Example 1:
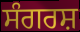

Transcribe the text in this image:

ਸੰਗਰਸ਼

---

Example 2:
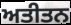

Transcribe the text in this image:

ਅਤੀਤਨ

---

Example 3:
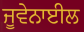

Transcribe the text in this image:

ਜੂਵੇਨਾਈਲ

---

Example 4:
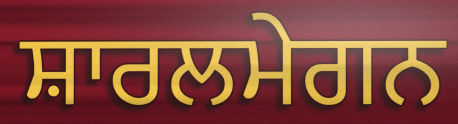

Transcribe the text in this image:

ਸ਼ਾਰਲਮੇਗਨ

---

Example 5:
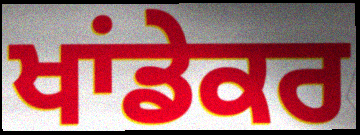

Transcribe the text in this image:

ਖਾਂਡੇਕਰ